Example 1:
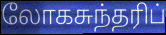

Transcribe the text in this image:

லோகசுந்தரிப்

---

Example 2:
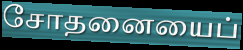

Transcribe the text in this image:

சோதனையைப்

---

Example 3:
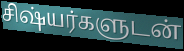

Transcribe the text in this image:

சிஷ்யர்களுடன்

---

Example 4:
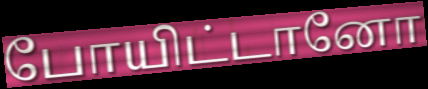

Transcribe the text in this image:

போயிட்டானோ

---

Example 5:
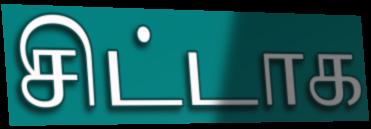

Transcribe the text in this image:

சிட்டாக